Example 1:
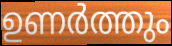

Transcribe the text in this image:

ഉണർത്തും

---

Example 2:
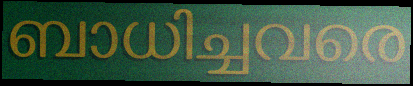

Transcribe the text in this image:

ബാധിച്ചവരെ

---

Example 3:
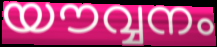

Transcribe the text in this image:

യൗവ്വനം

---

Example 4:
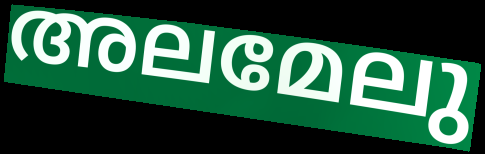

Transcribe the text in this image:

അലമേലു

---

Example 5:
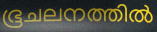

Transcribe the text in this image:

ഭൂചലനത്തിൽ